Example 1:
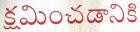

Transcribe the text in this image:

క్షమించడానికి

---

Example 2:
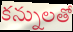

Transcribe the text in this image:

కన్నులతో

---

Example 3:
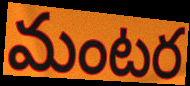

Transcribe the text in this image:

మంటర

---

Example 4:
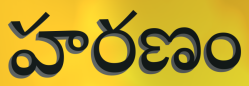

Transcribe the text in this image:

హరణం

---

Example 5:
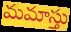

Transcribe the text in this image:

మమాస్తు